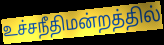
உச்சநீதிமன்றத்தில்